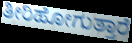
ತೀರಿಹೋಗುತ್ತಾರೆ